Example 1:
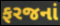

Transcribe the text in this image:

ફરજનાં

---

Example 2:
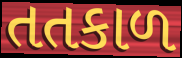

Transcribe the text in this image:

તતકાળ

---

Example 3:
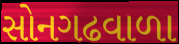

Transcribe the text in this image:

સોનગઢવાળા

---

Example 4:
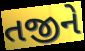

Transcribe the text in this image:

તજીને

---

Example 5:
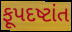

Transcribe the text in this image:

ફૂપદષ્ટાંત